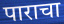
पाराचा